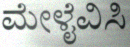
ಮೇಳೈವಿಸಿ